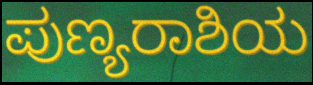
ಪುಣ್ಯರಾಶಿಯ